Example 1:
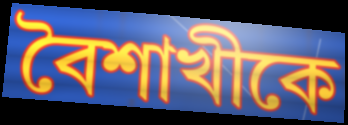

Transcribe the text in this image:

বৈশাখীকে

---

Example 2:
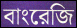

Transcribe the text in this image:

বাংরেজি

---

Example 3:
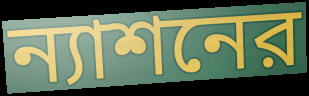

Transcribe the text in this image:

ন্যাশনের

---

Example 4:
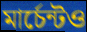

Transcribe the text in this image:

মার্চেন্টও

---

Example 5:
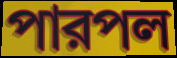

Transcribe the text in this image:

পারপল